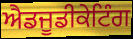
ਐਡਜੂਡੀਕੇਟਿੰਗ